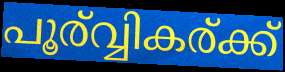
പൂര്വ്വികര്ക്ക്